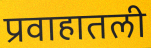
प्रवाहातली